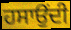
ਹਸਾਉਂਦੀ